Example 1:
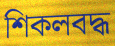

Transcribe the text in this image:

শিকলবদ্ধ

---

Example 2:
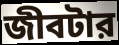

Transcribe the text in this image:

জীবটার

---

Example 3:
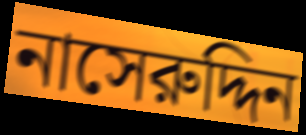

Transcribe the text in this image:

নাসেরুদ্দিন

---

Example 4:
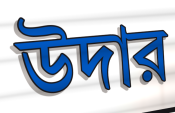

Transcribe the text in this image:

উদার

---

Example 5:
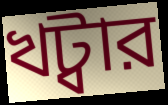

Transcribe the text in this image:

খট্বার